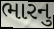
ભારનુ